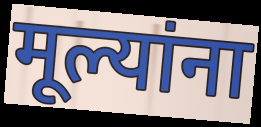
मूल्यांना